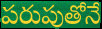
పరుపుతోనే